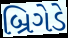
બ્રિગેડે